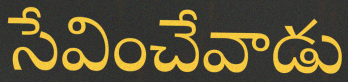
సేవించేవాడు